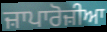
ਜ਼ਾਪਾਰੋਜ਼ੀਆ